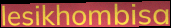
lesikhombisa